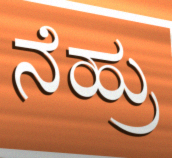
ನೆಹ್ರು